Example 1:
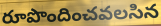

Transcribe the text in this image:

రూపొందించవలసిన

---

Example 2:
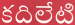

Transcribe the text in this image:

కదిలేటి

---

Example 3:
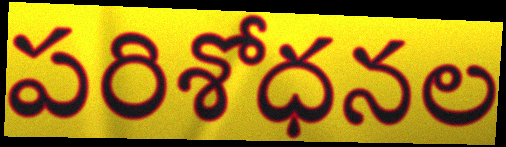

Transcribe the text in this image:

పరిశోధనల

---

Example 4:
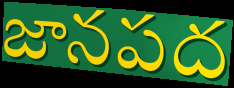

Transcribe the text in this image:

జానపద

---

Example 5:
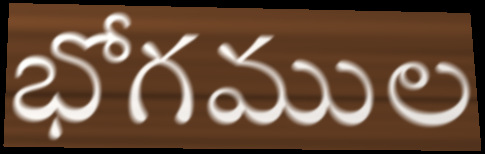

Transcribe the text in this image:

భోగముల